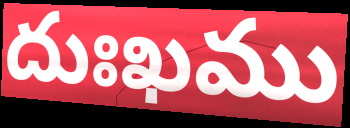
దుఃఖము